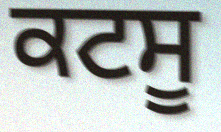
ਕਟਸੂ